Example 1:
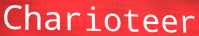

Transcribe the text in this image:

Charioteer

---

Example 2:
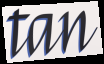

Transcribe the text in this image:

tan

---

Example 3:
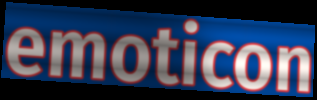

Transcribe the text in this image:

emoticon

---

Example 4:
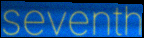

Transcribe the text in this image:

seventh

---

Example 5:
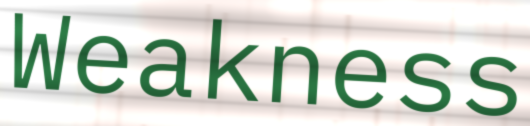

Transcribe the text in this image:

Weakness